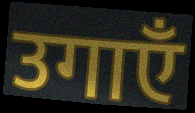
उगाएँ